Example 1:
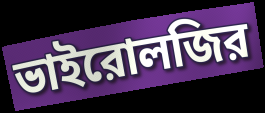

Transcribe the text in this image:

ভাইরোলজির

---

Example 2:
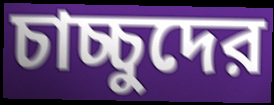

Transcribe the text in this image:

চাচ্চুদের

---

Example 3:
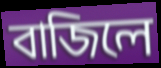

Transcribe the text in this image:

বাজিলে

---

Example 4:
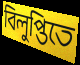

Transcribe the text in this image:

বিলুপ্তিতে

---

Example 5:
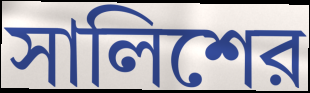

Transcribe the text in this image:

সালিশের